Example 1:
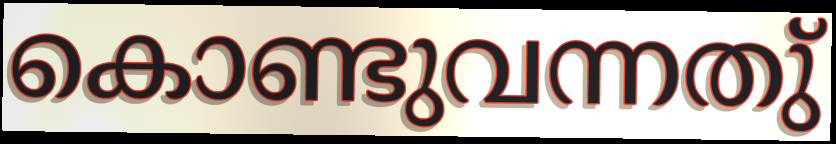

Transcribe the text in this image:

കൊണ്ടുവന്നതു്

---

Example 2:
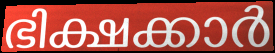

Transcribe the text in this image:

ഭിക്ഷക്കാർ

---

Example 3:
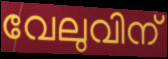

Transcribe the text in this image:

വേലുവിന്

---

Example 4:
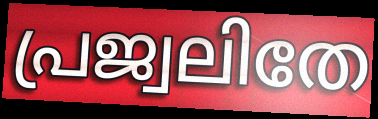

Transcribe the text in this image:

പ്രജ്വലിതേ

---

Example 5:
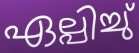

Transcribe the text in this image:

ഏല്പിച്ചു്